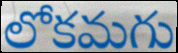
లోకమగు